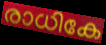
രാധികേ